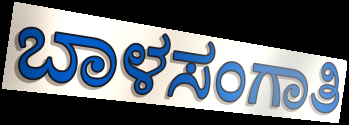
ಬಾಳಸಂಗಾತಿ